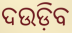
ଦଉଡ଼ିବ